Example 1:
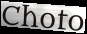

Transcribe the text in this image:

Choto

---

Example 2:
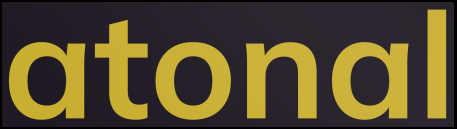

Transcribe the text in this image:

atonal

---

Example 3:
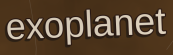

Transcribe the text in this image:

exoplanet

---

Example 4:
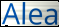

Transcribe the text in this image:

Alea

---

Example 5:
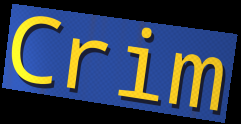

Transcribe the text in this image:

Crim